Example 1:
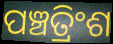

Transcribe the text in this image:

ପଞ୍ଚତ୍ରିଂଶ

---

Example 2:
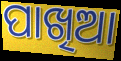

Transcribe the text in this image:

ପାଖିଆ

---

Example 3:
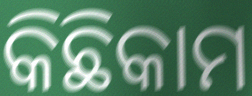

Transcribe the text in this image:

କିଛିକାମ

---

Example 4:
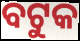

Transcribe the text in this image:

ବଟୁକ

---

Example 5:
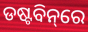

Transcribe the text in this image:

ଡଷ୍ଟବିନ୍‌ରେ